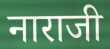
नाराजी